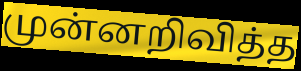
முன்னறிவித்த